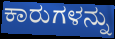
ಕಾರುಗಳನ್ನು